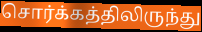
சொர்க்கத்திலிருந்து